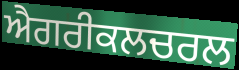
ਐਗਰੀਕਲਚਰਲ